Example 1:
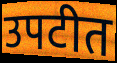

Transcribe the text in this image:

उपटीत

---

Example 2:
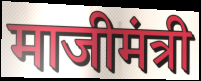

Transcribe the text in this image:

माजीमंत्री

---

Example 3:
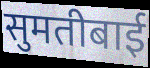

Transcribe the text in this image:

सुमतीबाई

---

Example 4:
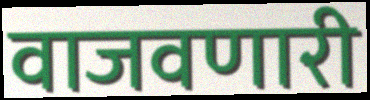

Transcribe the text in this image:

वाजवणारी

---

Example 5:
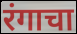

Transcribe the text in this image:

रंगाचा